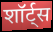
शॉर्ट्स